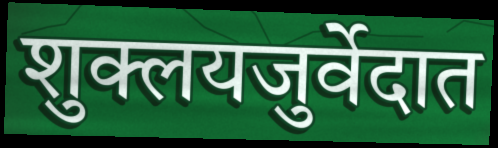
शुक्लयजुर्वेदात